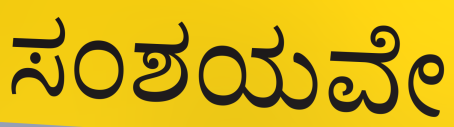
ಸಂಶಯವೇ